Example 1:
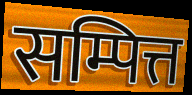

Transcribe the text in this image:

सम्पित्त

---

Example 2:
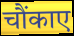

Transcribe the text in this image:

चौंकाए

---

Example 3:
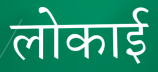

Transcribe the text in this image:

लोकाई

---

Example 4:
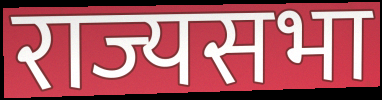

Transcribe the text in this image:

राज्‍यसभा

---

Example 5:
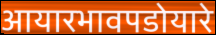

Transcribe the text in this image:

आयारभावपडोयारे